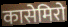
कासेमिरो